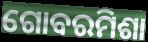
ଗୋବରମିଶା